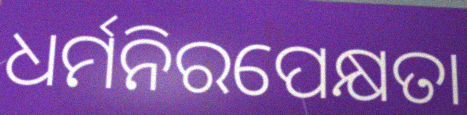
ଧର୍ମନିରପେକ୍ଷତା